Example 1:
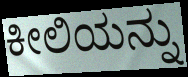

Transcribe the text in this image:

ಕೀಲಿಯನ್ನು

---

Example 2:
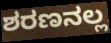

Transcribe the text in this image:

ಶರಣನಲ್ಲ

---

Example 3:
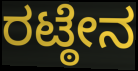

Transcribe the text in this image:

ರಟ್ಠೇನ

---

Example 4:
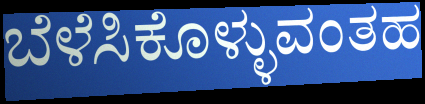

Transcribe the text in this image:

ಬೆಳೆಸಿಕೊಳ್ಳುವಂತಹ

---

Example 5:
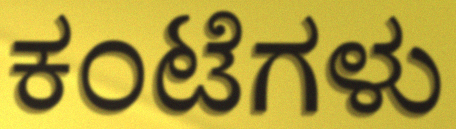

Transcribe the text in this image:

ಕಂಟೆಗಳು